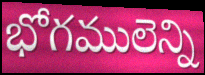
భోగములెన్ని